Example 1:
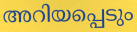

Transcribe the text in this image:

അറിയപ്പെടും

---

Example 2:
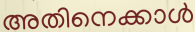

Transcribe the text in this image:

അതിനെക്കാൾ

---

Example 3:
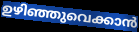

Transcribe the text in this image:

ഉഴിഞ്ഞുവെക്കാൻ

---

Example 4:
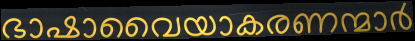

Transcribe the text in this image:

ഭാഷാവൈയാകരണന്മാർ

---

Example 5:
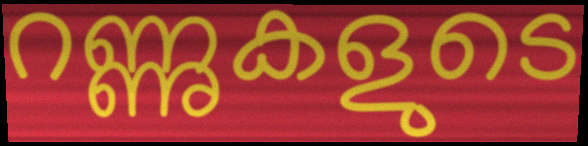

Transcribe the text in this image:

റണ്ണുകളുടെ